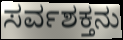
ಸರ್ವಶಕ್ತನು